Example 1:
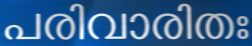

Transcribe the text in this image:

പരിവാരിതഃ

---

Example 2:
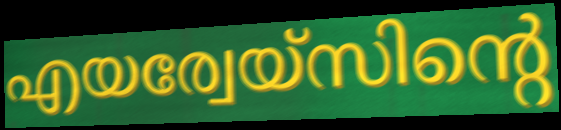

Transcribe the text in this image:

എയര്വേയ്സിന്റെ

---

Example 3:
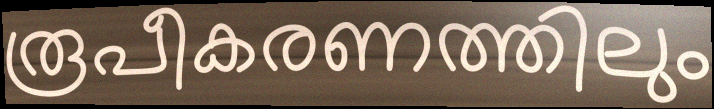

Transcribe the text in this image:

രൂപീകരണത്തിലും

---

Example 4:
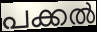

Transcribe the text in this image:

പക്കൽ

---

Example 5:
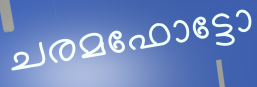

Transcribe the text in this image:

ചരമഫോട്ടോ